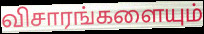
விசாரங்களையும்